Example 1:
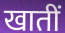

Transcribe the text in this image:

खातीं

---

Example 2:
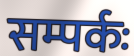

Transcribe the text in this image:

सम्पर्कः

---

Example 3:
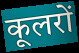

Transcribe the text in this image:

कूलरों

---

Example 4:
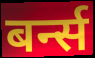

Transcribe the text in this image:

बर्न्स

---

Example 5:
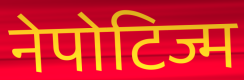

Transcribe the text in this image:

नेपोटिज्म